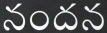
నందన